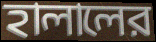
হালালের